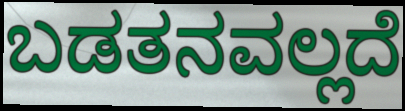
ಬಡತನವಲ್ಲದೆ